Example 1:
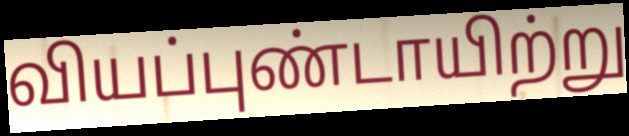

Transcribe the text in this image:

வியப்புண்டாயிற்று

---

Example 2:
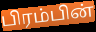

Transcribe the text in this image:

பிரம்பின்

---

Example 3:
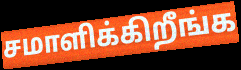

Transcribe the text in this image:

சமாளிக்கிறீங்க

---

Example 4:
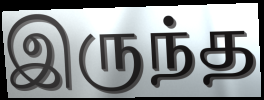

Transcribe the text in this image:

இருந்த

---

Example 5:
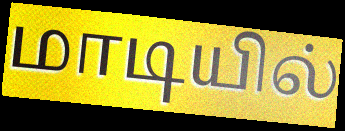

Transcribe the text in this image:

மாடியில்